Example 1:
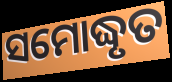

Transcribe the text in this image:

ସମୋଦ୍ଧୃତ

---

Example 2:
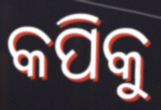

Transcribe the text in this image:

କପିକୁ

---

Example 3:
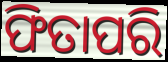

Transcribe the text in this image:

ଫିତାପରି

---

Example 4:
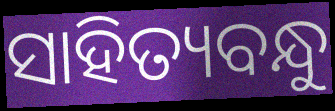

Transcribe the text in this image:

ସାହିତ୍ୟବନ୍ଧୁ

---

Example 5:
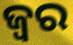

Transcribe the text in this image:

ଜ୍ଵର